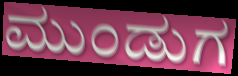
ಮುಂಡುಗ